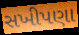
સખીપણા